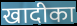
खादीका